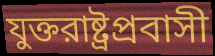
যুক্তরাষ্ট্রপ্রবাসী